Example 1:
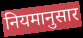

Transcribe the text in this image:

नियमानुसार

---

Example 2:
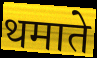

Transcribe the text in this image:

थमाते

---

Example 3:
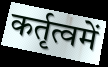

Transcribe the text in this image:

कर्तृत्वमें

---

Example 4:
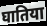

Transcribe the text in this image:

घातिया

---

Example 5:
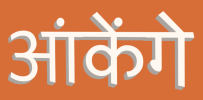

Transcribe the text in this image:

आंकेंगे